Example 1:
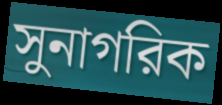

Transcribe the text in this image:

সুনাগরিক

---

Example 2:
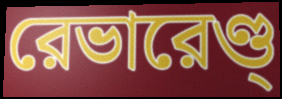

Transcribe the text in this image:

রেভারেণ্ড্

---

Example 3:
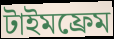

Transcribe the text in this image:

টাইমফ্রেম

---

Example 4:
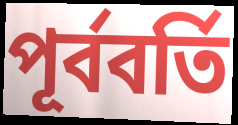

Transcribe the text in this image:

পূর্ববর্তি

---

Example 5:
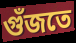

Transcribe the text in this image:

গুঁজতে